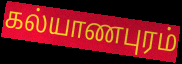
கல்யாணபுரம்